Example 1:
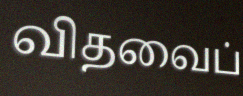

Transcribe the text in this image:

விதவைப்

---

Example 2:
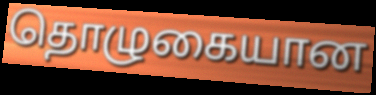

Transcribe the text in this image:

தொழுகையான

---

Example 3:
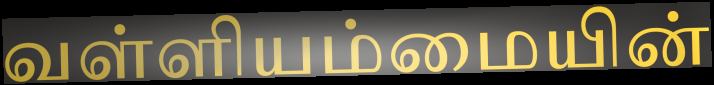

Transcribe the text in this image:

வள்ளியம்மையின்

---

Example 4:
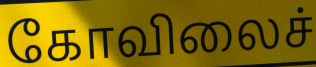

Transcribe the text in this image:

கோவிலைச்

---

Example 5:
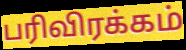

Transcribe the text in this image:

பரிவிரக்கம்